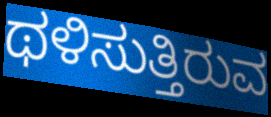
ಥಳಿಸುತ್ತಿರುವ